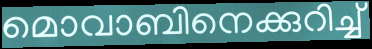
മൊവാബിനെക്കുറിച്ച്